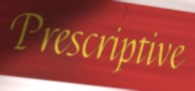
Prescriptive